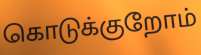
கொடுக்குறோம்